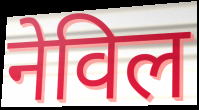
नेविल